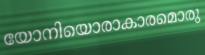
യോനിയൊരാകാരമൊരു